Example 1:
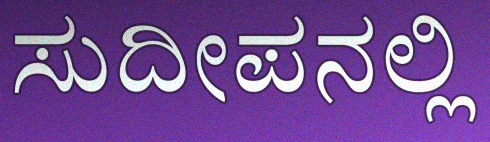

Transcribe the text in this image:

ಸುದೀಪನಲ್ಲಿ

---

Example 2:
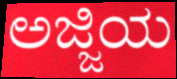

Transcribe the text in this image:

ಅಜ್ಜಿಯ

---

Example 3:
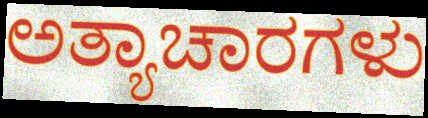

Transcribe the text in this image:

ಅತ್ಯಾಚಾರಗಳು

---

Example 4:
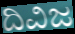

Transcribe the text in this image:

ದಿವಿಜ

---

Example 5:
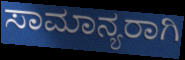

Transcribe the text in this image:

ಸಾಮಾನ್ಯರಾಗಿ